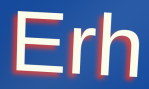
Erh